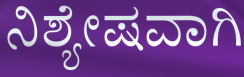
ನಿಶ್ಯೇಷವಾಗಿ